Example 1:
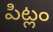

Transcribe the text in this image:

పిట్లం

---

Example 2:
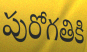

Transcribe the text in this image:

పురోగతికి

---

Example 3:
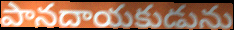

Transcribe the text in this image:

పానదాయకుడును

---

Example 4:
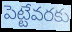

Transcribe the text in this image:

పెట్టేవరకు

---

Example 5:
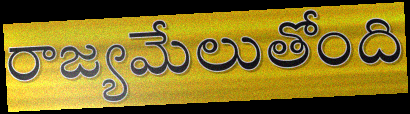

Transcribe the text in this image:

రాజ్యమేలుతోంది